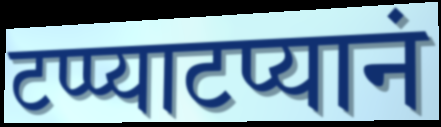
टप्प्याटप्यानं